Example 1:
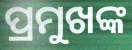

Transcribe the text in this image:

ପ୍ରମୁଖଙ୍କ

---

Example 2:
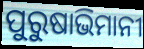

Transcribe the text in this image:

ପୁରୁଷାଭିମାନୀ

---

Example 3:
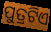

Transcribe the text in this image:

ପୁତ୍ରଟିଏ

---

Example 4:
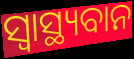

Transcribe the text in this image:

ସ୍ୱାସ୍ଥ୍ୟବାନ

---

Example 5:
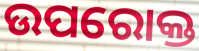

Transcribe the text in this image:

ଉପରୋକ୍ତ